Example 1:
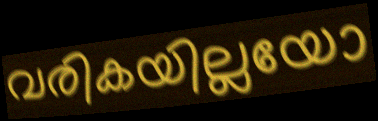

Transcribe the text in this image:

വരികയില്ലയോ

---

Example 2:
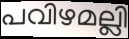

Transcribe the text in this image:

പവിഴമല്ലി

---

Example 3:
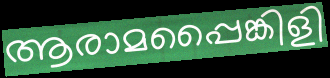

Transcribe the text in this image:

ആരാമപ്പൈങ്കിളി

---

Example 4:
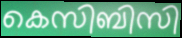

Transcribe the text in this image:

കെസിബിസി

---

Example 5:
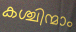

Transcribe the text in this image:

കശ്ചിന്മാം